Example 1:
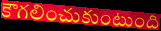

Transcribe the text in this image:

కౌగలించుకుంటుంది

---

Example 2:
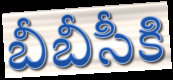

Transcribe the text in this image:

బీబీసీకి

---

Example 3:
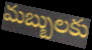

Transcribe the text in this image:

మబ్బులకు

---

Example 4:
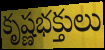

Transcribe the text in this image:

కృష్ణభక్తులు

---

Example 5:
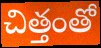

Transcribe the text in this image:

చిత్తంతో